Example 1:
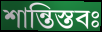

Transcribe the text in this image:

শান্তিস্তবঃ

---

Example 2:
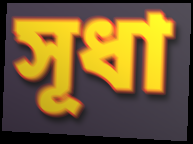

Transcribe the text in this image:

সূধা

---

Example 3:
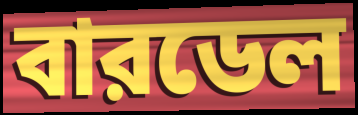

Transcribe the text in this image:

বারডেল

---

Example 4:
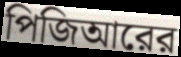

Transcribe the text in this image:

পিজিআরের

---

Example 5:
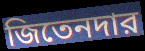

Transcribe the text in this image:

জিতেনদার